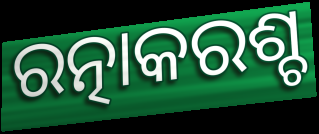
ରତ୍ନାକରଶ୍ଚ